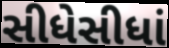
સીધેસીધાં